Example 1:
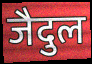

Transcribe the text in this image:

जैदुल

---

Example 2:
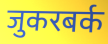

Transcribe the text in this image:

जुकरबर्क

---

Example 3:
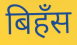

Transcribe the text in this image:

बिहँस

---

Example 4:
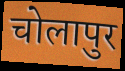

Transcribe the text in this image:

चोलापुर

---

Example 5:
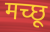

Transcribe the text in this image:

मच्छू